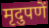
मृदुपणें